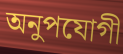
অনুপযোগী